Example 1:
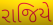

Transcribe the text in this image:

રાજિયે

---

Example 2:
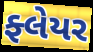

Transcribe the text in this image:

ફ્લેયર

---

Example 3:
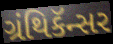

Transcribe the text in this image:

ગ્રંથિકૅન્સર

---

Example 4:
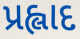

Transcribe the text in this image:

પ્રહ્લાદ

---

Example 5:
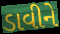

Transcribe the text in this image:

ડાવીને